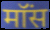
मॉंस